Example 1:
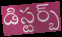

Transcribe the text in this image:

డిస్టర్బ్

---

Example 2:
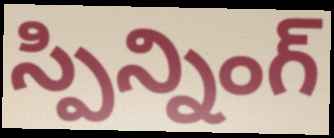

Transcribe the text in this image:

స్పిన్నింగ్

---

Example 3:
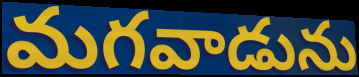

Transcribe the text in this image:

మగవాడును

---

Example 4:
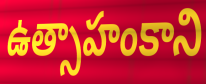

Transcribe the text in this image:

ఉత్సాహంకాని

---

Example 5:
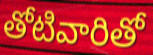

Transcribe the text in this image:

తోటివారితో